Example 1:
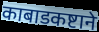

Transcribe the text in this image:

काबाडकष्टाने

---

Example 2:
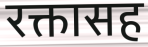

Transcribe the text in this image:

रक्तासह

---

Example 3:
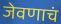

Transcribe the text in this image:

जेवणाचं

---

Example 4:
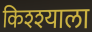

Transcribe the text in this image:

किश्श्याला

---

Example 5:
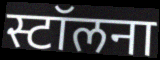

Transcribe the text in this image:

स्टॉलना